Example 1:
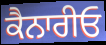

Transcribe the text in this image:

ਕੈਨਾਰੀਓ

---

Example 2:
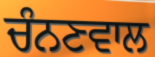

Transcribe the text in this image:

ਚੰਨਣਵਾਲ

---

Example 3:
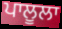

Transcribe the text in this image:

ਪਾਲੂਲਾ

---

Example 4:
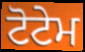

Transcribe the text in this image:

ਟੋਟੇਮ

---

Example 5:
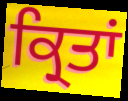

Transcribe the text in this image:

ਕ੍ਰਿਤਾਂ